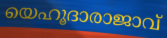
യെഹൂദാരാജാവ്